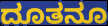
ದೂತನೂ